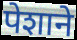
पेशाने